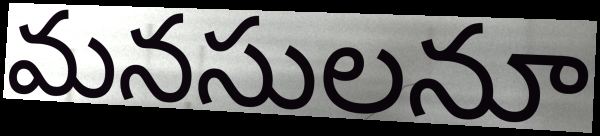
మనసులనూ